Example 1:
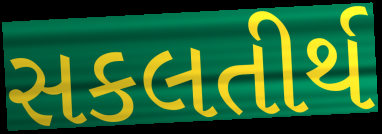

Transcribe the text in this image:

સકલતીર્થ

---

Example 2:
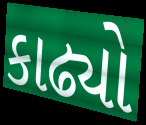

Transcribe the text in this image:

કાઢ્યો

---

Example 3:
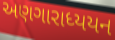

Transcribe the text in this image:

અણગારાધ્યયન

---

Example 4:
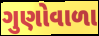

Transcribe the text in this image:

ગુણોવાળા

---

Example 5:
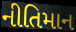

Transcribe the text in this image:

નીતિમાન